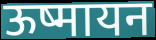
ऊष्मायन